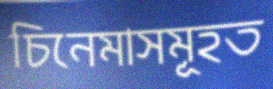
চিনেমাসমূহত